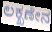
ಲಕ್ಖಣೇನ